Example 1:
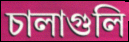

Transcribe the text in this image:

চালাগুলি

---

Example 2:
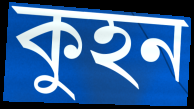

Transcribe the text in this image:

কুহন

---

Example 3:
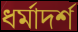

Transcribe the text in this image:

ধর্মাদর্শ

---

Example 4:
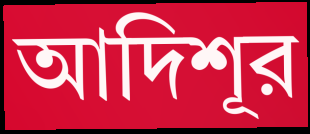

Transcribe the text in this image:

আদিশূর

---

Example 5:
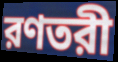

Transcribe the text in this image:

রণতরী